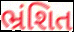
ભ્રંશિત